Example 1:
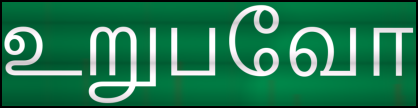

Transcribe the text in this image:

உறுபவோ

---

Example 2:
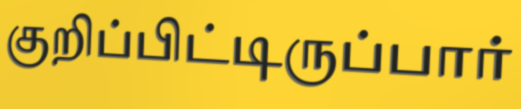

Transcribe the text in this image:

குறிப்பிட்டிருப்பார்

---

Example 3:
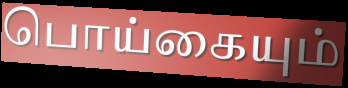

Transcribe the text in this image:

பொய்கையும்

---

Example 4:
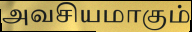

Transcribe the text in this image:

அவசியமாகும்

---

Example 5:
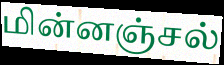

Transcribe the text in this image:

மின்னஞ்சல்